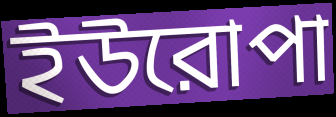
ইউরোপা